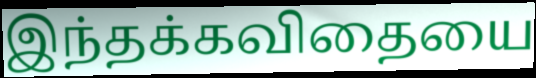
இந்தக்கவிதையை